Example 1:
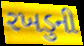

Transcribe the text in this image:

રખડુની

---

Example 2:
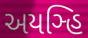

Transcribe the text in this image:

અયઞ્હિ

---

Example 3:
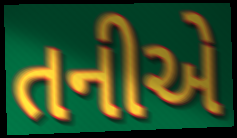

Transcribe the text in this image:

તનીએ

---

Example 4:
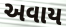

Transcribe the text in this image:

અવાય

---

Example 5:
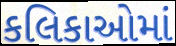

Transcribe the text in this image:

કલિકાઓમાં